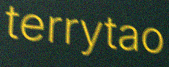
terrytao